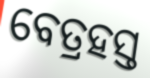
ବେତ୍ରହସ୍ତ